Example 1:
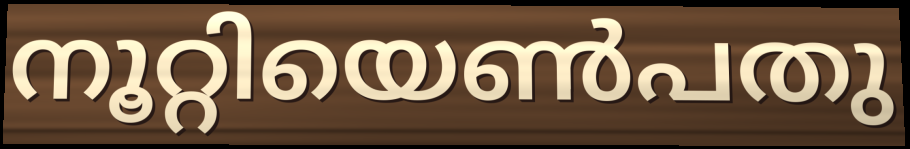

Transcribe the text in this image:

നൂറ്റിയെൺപതു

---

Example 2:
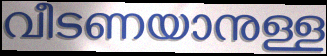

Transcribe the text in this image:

വീടണയാനുള്ള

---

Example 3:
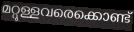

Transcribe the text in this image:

മറ്റുള്ളവരെക്കൊണ്ട്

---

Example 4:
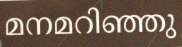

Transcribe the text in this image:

മനമറിഞ്ഞു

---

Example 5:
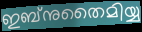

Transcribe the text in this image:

ഇബ്നുതൈമിയ്യ